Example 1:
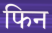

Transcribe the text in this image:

फिन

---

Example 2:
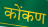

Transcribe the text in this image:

कोंकण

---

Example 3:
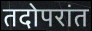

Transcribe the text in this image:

तदोपरांत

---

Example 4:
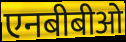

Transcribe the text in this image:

एनबीबीओ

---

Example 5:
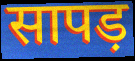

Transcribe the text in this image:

सापड़